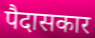
पैदासकार